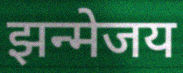
झन्मेजय